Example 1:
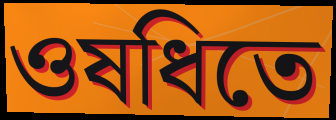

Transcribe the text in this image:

ওষধিতে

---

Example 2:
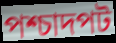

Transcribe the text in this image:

পশ্চাদপট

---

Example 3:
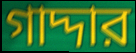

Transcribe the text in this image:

গাদ্দার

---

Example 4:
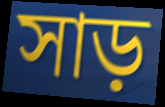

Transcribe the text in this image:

সাড়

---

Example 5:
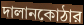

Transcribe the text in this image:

দালানকোঠার